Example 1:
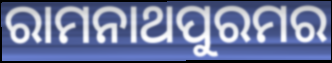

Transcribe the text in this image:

ରାମନାଥପୁରମର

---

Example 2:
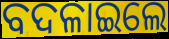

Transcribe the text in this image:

ବଦଳାଇଲେ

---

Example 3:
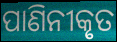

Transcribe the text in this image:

ପାଣିନୀକୃତ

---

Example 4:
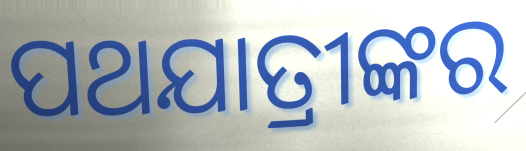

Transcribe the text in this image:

ପଥଯାତ୍ରୀଙ୍କର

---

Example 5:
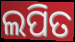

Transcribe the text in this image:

ଲପିତ